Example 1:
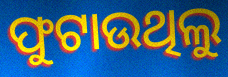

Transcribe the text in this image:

ଫୁଟାଉଥିଲୁ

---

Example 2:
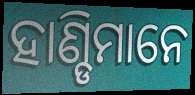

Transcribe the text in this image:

ହାଣ୍ଡିମାନେ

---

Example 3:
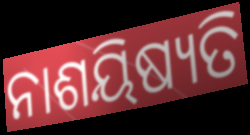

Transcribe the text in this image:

ନାଶୟିଷ୍ୟତି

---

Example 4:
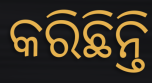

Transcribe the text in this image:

କରିଛିନ୍ତି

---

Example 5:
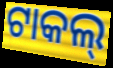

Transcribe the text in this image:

ଟାକଲ୍